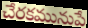
చేరకమునుపే